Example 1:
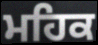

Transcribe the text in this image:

ਮਹਿਕ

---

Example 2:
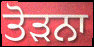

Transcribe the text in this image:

ਤੋੜਨਾ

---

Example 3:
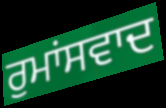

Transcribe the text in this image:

ਰੁਮਾਂਸਵਾਦ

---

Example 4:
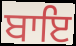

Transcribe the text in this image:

ਬਾਇ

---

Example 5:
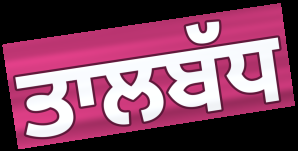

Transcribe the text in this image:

ਤਾਲਬੱਧ